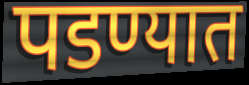
पडण्यात